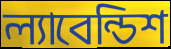
ল্যাবেন্ডিশ